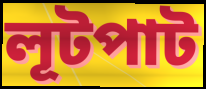
লূটপাট